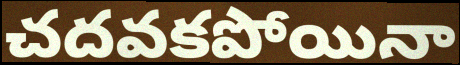
చదవకపోయినా